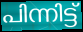
പിന്നിട്ട്